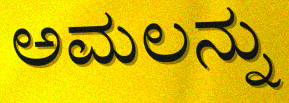
ಅಮಲನ್ನು